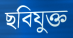
ছবিযুক্ত